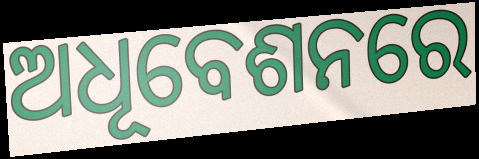
ଅଧୂବେଶନରେ